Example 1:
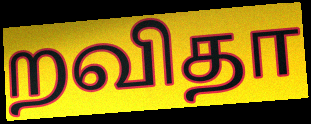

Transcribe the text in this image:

றவிதா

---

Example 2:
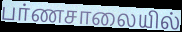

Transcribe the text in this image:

பர்ணசாலையில்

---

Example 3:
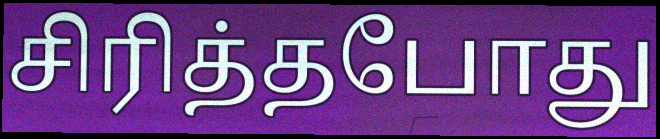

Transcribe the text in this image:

சிரித்தபோது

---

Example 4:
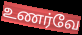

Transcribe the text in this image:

உணர்வே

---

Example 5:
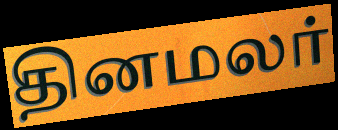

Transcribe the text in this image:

தினமலர்